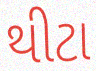
થીટા